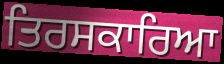
ਤਿਰਸਕਾਰਿਆ